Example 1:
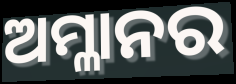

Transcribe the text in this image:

ଅମ୍ଳାନର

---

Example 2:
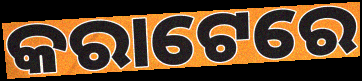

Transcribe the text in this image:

କରାଟେରେ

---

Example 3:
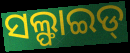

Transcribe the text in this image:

ସଲ୍ଫାଇଡ୍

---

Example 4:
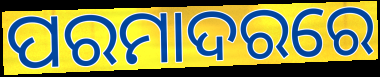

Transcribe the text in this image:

ପରମାଦରରେ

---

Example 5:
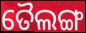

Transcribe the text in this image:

ତୈଲଙ୍ଗ